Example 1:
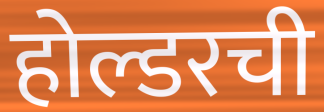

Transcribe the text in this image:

होल्डरची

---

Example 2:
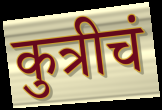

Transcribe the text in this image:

कुत्रीचं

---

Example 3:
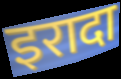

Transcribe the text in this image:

इरादा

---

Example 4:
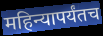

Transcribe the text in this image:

महिन्यापर्यंतच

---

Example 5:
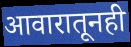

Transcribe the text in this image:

आवारातूनही